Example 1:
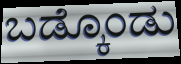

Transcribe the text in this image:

ಬಡ್ಕೊಂಡು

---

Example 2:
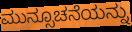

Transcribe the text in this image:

ಮುನ್ಸೂಚನೆಯನ್ನು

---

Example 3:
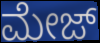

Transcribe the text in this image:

ಮೇಜ್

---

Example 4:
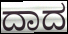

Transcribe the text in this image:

ದಾದ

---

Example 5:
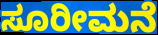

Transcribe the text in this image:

ಸೂರೀಮನೆ